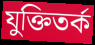
যুক্তিতর্ক